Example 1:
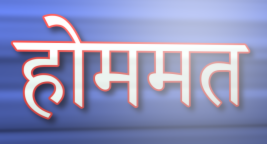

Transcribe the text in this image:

होममत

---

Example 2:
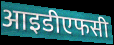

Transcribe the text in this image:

आइडीएफसी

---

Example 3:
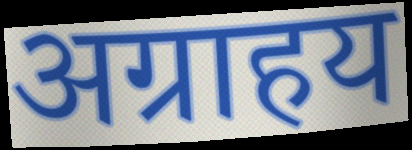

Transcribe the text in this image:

अग्राहय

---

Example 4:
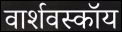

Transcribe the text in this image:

वार्शवस्कॉय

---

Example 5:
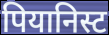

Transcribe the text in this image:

पियानिस्ट